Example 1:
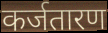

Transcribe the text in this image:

कर्जतारण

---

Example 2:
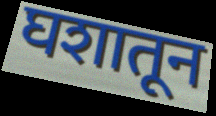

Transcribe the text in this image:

घशातून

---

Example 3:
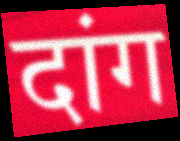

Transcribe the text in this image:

दांग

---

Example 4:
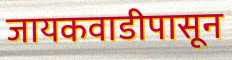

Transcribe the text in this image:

जायकवाडीपासून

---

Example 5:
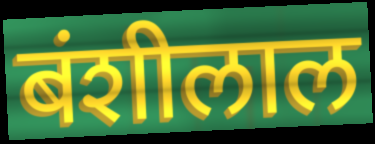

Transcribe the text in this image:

बंशीलाल